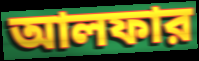
আলফার